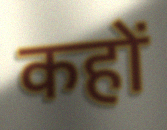
कहों